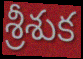
శ్రీశుక